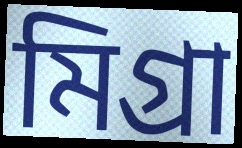
মিগ্রা